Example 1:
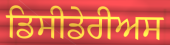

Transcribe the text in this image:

ਡਿਸੀਡੇਰੀਅਸ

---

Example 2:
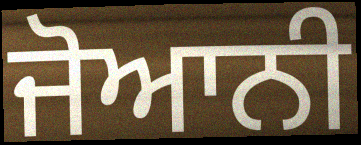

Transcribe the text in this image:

ਜੋਆਨੀ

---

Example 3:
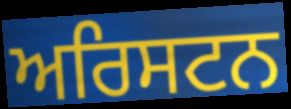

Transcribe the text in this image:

ਅਰਿਸਟਨ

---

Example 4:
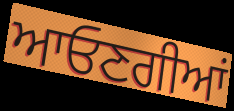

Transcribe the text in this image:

ਆਓਣਗੀਆਂ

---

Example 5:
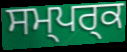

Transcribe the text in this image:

ਸਮ੍ਪਰ੍ਕ